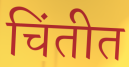
चिंतीत